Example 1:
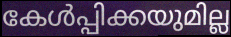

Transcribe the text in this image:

കേൾപ്പിക്കയുമില്ല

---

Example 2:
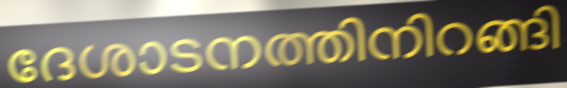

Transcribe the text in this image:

ദേശാടനത്തിനിറങ്ങി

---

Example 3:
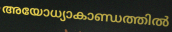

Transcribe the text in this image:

അയോധ്യാകാണ്ഡത്തിൽ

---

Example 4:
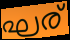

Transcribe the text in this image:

ഘര്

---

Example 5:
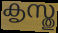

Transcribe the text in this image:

കൃസ്തു